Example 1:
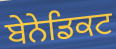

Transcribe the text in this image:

ਬੇਨੇਡਿਕਟ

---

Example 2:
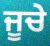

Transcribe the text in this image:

ਜੂਚੇ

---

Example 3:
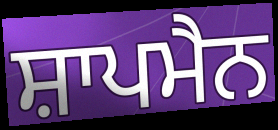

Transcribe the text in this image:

ਸ਼ਾਪਮੈਨ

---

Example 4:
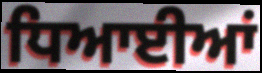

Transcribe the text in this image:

ਧਿਆਈਆਂ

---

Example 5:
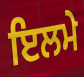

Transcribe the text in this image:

ਇਲਮੇ